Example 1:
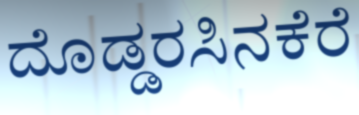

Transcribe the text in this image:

ದೊಡ್ಡರಸಿನಕೆರೆ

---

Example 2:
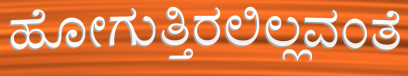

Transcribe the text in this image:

ಹೋಗುತ್ತಿರಲಿಲ್ಲವಂತೆ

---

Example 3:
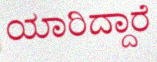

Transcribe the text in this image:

ಯಾರಿದ್ದಾರೆ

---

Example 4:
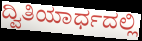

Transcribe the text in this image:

ದ್ವಿತಿಯಾರ್ಧದಲ್ಲಿ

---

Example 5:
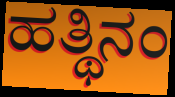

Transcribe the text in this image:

ಹತ್ಥಿನಂ